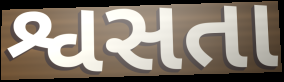
શ્વસતા